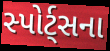
સ્પોર્ટ્સના